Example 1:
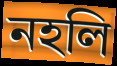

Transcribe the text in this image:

নহলি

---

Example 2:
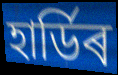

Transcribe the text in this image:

হাৰ্ডিৰ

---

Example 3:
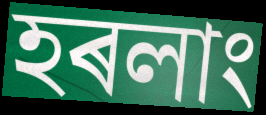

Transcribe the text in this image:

হৰলাং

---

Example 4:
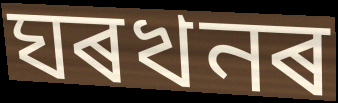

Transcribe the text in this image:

ঘৰখনৰ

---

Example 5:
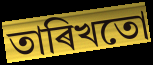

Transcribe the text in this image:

তাৰিখতো